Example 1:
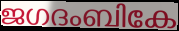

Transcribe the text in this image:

ജഗദംബികേ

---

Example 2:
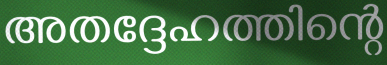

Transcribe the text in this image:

അതദ്ദേഹത്തിന്റെ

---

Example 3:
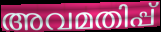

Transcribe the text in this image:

അവമതിപ്പ്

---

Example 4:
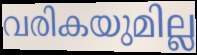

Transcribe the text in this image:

വരികയുമില്ല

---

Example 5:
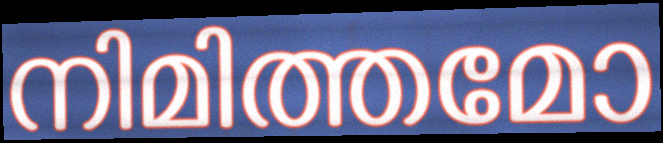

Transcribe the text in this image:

നിമിത്തമോ